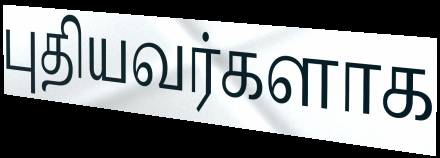
புதியவர்களாக